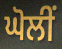
ਘੋਲੀਂ